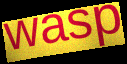
wasp